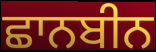
ਛਾਨਬੀਨ